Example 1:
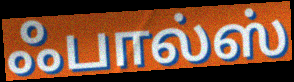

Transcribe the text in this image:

ஃபால்ஸ்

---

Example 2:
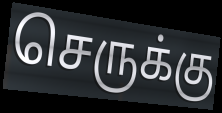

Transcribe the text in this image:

செருக்கு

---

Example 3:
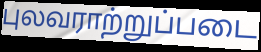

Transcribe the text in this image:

புலவராற்றுப்படை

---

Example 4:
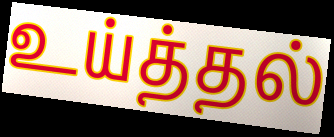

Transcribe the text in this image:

உய்த்தல்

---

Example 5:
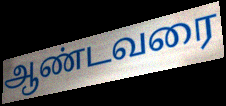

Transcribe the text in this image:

ஆண்டவரை